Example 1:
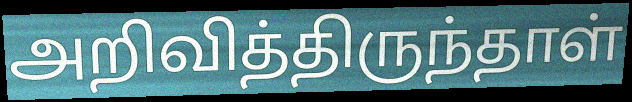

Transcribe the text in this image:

அறிவித்திருந்தாள்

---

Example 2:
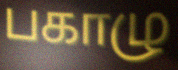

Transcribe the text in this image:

பகாழு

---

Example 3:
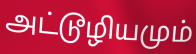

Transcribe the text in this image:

அட்டூழியமும்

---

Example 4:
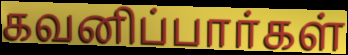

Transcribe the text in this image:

கவனிப்பார்கள்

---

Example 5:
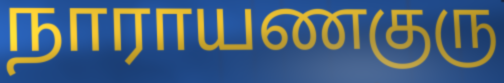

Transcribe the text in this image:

நாராயணகுரு